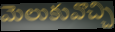
మెలుకువొచ్చి